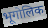
भूगोलिक